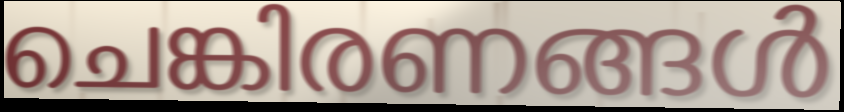
ചെങ്കിരണങ്ങൾ